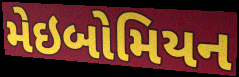
મેઇબોમિયન